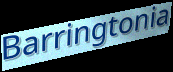
Barringtonia